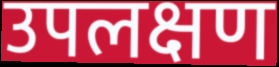
उपलक्षण